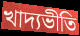
খাদ্যভীতি